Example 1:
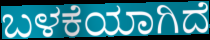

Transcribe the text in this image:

ಬಳಕೆಯಾಗಿದೆ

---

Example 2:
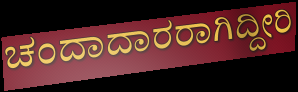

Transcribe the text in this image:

ಚಂದಾದಾರರಾಗಿದ್ದೀರಿ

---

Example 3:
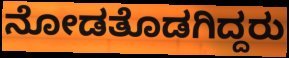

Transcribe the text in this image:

ನೋಡತೊಡಗಿದ್ದರು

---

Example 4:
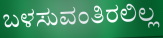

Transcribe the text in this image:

ಬಳಸುವಂತಿರಲಿಲ್ಲ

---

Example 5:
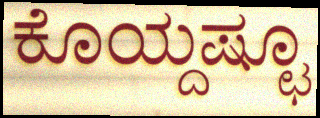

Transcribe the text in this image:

ಕೊಯ್ದಷ್ಟೂ